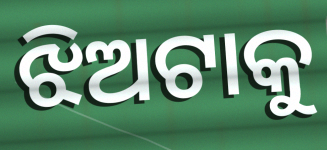
ଝିଅଟାକୁ